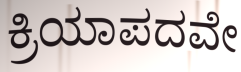
ಕ್ರಿಯಾಪದವೇ